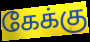
கேக்கு